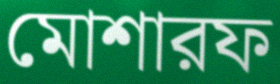
মোশারফ